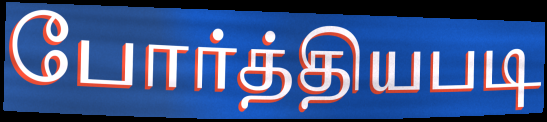
போர்த்தியபடி